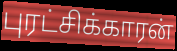
புரட்சிக்காரன்